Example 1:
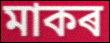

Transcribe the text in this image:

মাকৰ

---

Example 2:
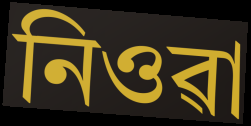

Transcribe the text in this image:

নিওৱা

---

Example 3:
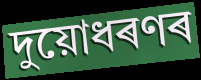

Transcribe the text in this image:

দুয়োধৰণৰ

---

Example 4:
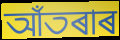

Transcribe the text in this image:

আঁতৰাৰ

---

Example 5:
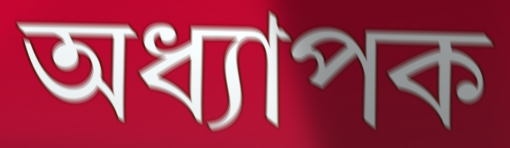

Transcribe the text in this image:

অধ্যাপক